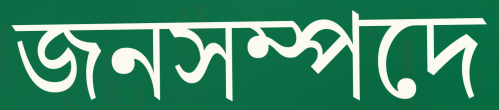
জনসম্পদে